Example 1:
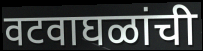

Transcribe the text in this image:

वटवाघळांची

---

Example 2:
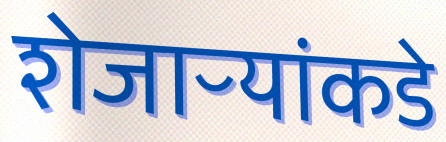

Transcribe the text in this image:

शेजाऱ्यांकडे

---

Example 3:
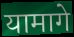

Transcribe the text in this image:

यामागे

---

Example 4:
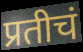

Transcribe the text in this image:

प्रतीचं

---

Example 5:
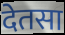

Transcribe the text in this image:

देतसा